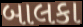
બાલકા